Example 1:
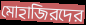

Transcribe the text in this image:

মোহাজিরদের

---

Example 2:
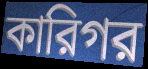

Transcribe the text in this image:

কারিগর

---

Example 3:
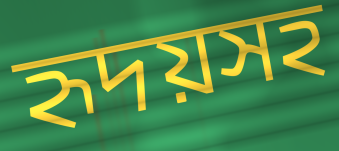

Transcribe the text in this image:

হৃদয়সহ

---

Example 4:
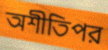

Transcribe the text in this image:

অশীতিপর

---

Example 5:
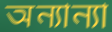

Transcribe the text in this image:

অন্যান্যা